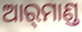
ଆର୍‌ମାଣ୍ଡ